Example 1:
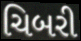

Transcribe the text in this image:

ચિબરી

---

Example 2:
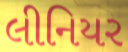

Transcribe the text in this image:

લીનિયર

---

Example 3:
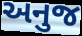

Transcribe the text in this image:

અનુજ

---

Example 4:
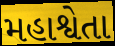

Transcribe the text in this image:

મહાશ્વેતા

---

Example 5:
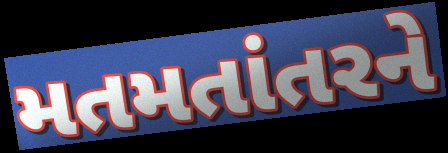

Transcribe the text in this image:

મતમતાંતરને